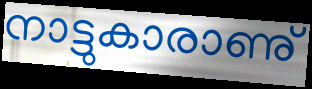
നാട്ടുകാരാണു്